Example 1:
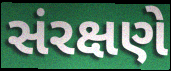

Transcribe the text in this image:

સંરક્ષણે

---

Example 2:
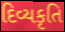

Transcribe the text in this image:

દિવ્યકૃતિ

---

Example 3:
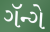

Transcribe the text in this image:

ગૅન્ગે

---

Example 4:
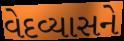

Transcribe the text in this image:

વેદવ્યાસને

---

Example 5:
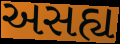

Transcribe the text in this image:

અસહ્ય